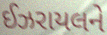
ઈઝરાયલને